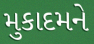
મુકાદમને